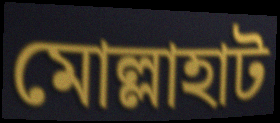
মোল্লাহাট